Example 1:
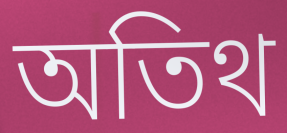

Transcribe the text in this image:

অতিথ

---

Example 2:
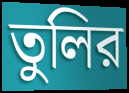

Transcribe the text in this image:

তুলির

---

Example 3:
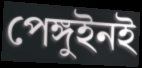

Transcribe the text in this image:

পেঙ্গুইনই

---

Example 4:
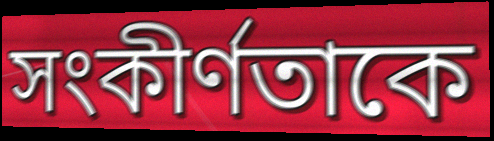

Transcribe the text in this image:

সংকীর্ণতাকে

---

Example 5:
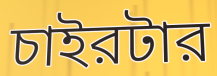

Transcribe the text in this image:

চাইরটার